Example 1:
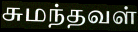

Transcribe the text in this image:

சுமந்தவள்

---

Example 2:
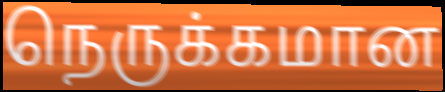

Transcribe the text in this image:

நெருக்கமான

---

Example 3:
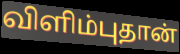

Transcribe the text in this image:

விளிம்புதான்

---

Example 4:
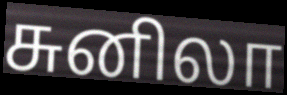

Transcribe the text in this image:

சுனிலா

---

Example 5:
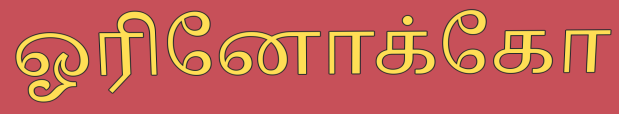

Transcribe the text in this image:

ஓரினோக்கோ